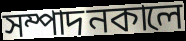
সম্পাদনকালে